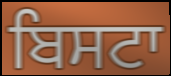
ਬਿਸਟਾ